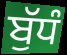
ਬੁੱਧੰ